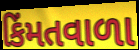
કિંમતવાળા